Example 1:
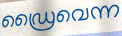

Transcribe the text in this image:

ഡ്രൈവെന്ന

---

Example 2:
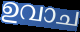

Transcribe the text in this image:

ഉവാച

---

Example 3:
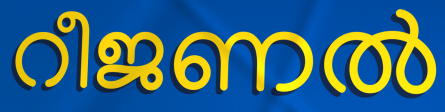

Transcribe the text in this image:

റീജണൽ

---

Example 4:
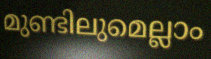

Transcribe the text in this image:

മുണ്ടിലുമെല്ലാം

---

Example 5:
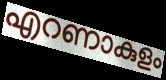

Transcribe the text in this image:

എറണാകുളം